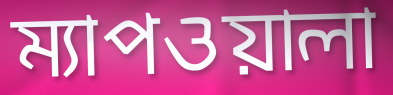
ম্যাপওয়ালা